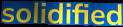
solidified